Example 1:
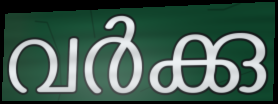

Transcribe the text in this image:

വർക്കു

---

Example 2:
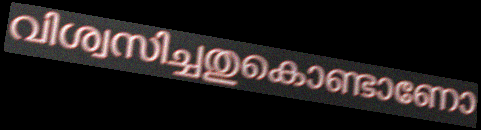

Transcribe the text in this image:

വിശ്വസിച്ചതുകൊണ്ടാണോ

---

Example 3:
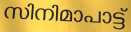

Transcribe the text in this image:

സിനിമാപാട്ട്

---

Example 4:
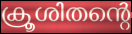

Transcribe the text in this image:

ക്രൂശിതന്റെ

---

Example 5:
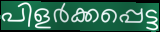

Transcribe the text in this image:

പിളർക്കപ്പെട്ട